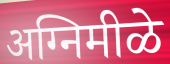
अग्निमीळे